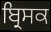
ਬ੍ਰਿਸਕ